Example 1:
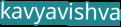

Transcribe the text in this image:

kavyavishva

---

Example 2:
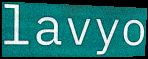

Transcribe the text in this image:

lavyo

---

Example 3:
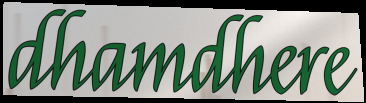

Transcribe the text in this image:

dhamdhere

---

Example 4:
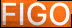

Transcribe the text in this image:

FIGO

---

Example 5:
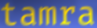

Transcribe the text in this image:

tamra